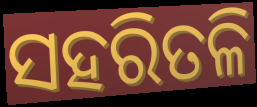
ସହରିତଳି